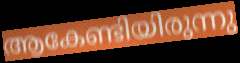
ആകേണ്ടിയിരുന്നു